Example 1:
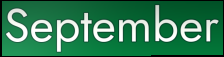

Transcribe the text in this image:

September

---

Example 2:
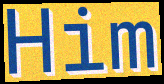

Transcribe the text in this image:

Him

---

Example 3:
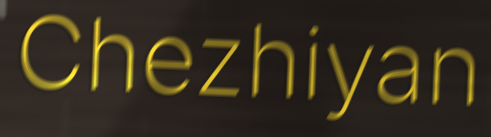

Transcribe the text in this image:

Chezhiyan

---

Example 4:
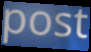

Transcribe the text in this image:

post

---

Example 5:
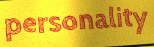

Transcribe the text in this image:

personality